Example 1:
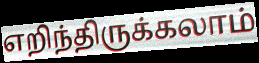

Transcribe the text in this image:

எறிந்திருக்கலாம்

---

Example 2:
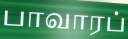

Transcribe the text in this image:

பாவாரப்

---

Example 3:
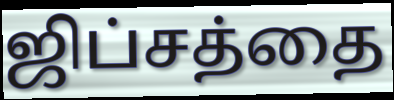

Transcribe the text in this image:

ஜிப்சத்தை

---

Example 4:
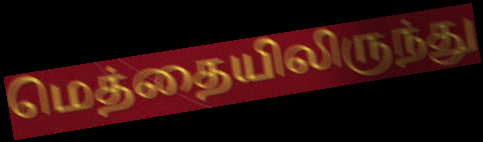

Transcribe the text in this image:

மெத்தையிலிருந்து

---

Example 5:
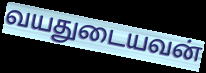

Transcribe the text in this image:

வயதுடையவன்